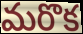
మరొక